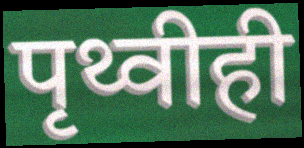
पृथ्वीही